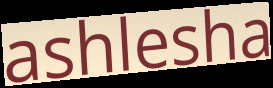
ashlesha